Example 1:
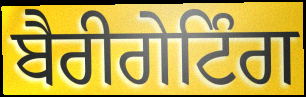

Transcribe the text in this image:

ਬੈਰੀਗੇਟਿੰਗ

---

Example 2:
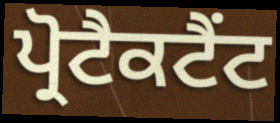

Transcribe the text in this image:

ਪ੍ਰੋਟੈਕਟੈਂਟ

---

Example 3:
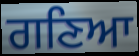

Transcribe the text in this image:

ਗਣਿਆ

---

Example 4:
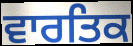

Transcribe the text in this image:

ਵਾਰਤਿਕ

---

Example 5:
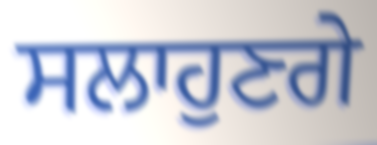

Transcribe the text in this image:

ਸਲਾਹੁਣਗੇ